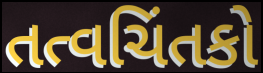
તત્વચિંતકો